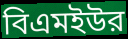
বিএমইউর